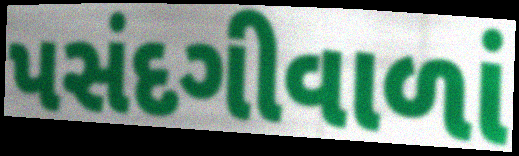
પસંદગીવાળાં